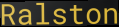
Ralston